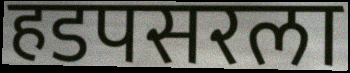
हडपसरला